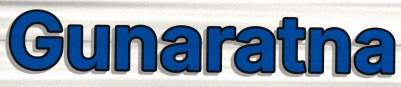
Gunaratna